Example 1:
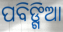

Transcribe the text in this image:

ପବିଙ୍ଗିଆ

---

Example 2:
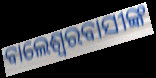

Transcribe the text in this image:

ବାଲେଶ୍ବରବାସୀଙ୍କ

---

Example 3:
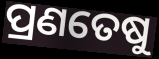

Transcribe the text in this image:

ପ୍ରଣତେଷୁ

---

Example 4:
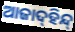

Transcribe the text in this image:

ଆଜାଦ୍‍ହିନ୍ଦ୍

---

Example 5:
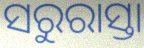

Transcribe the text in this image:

ସରୁରାସ୍ତା